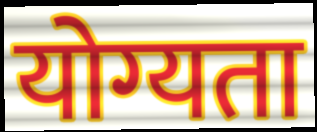
योग्‍यता